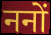
ननों